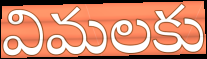
విమలకు